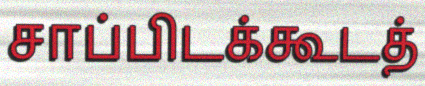
சாப்பிடக்கூடத்